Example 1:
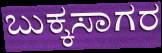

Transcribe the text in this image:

ಬುಕ್ಕಸಾಗರ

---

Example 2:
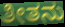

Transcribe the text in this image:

ತೀತನು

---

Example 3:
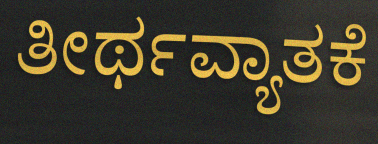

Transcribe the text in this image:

ತೀರ್ಥವ್ಯಾತಕೆ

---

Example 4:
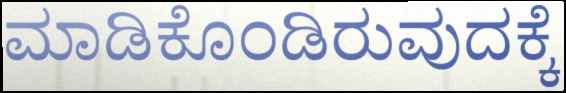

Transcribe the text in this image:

ಮಾಡಿಕೊಂಡಿರುವುದಕ್ಕೆ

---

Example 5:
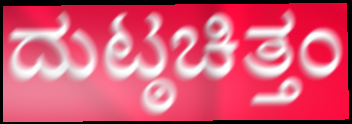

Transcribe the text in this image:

ದುಟ್ಠಚಿತ್ತಂ